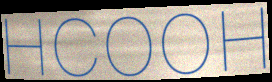
HCOOH